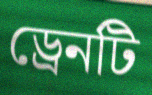
ড্রেনটি